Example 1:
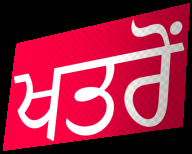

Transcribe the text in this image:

ਖਤਰੋਂ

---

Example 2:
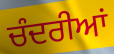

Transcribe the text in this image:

ਚੰਦਰੀਆਂ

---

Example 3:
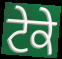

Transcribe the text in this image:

ਟੇਕੇ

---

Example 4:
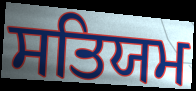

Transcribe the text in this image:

ਸਤਿਯਮ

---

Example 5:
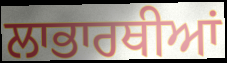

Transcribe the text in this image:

ਲਾਭਾਰਥੀਆਂ